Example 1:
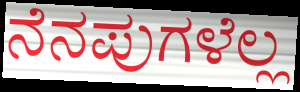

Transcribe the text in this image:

ನೆನಪುಗಳೆಲ್ಲ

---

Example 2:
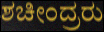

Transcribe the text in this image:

ಶಚೀಂದ್ರರು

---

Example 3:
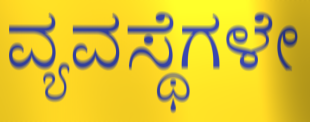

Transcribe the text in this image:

ವ್ಯವಸ್ಥೆಗಳೇ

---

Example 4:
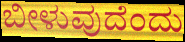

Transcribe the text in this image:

ಬೀಳುವುದೆಂದು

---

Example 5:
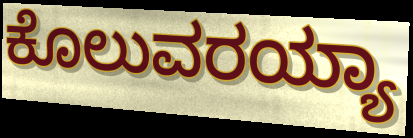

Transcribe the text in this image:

ಕೊಲುವರಯ್ಯಾ